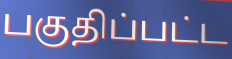
பகுதிப்பட்ட